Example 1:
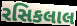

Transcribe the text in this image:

રસિકલાલ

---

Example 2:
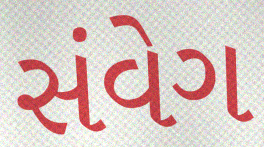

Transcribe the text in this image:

સંવેગ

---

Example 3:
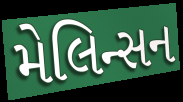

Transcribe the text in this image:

મેલિન્સન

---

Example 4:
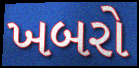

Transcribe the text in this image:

ખબરો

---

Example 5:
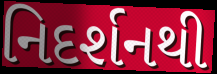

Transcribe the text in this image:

નિદર્શનથી